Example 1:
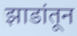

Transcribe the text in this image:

झाडांतून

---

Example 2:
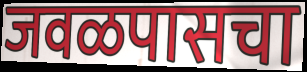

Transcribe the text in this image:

जवळपासचा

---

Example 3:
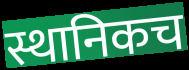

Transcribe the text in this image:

स्थानिकच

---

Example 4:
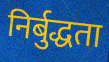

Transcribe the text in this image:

निर्बुद्धता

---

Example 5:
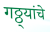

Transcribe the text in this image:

गठ्ठ्यांचे